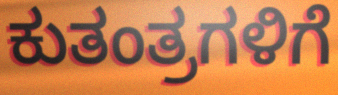
ಕುತಂತ್ರಗಳಿಗೆ